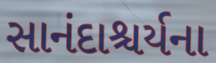
સાનંદાશ્ચર્યના